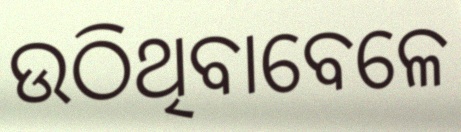
ଉଠିଥିବାବେଳେ